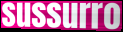
sussurro